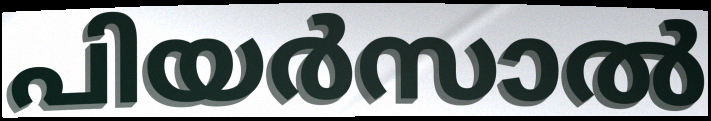
പിയർസാൽ